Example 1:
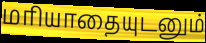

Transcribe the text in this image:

மரியாதையுடனும்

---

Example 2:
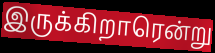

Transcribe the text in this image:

இருக்கிறாரென்று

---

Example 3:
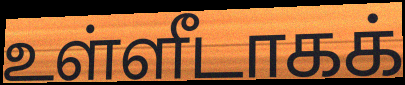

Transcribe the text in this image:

உள்ளீடாகக்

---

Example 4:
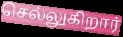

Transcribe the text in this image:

செல்லுகிறார்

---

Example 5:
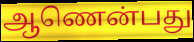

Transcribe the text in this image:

ஆணென்பது